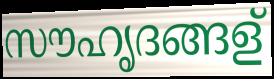
സൗഹൃദങ്ങള്